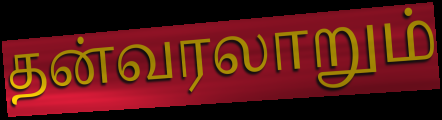
தன்வரலாறும்